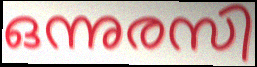
ഒന്നുരസി